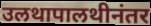
उलथापालथीनंतर